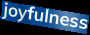
joyfulness